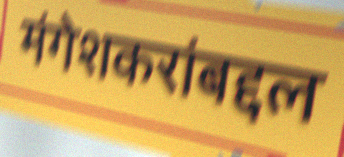
मंगेशकरांबद्दल